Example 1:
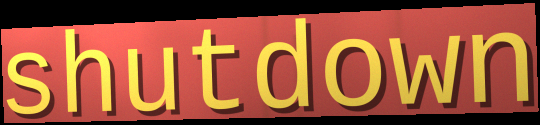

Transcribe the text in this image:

shutdown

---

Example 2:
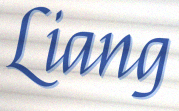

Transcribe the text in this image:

Liang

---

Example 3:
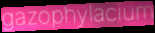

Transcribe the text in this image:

gazophylacium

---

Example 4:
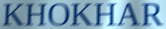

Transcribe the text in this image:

KHOKHAR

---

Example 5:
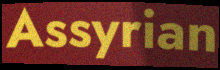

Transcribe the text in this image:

Assyrian